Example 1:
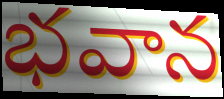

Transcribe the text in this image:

భవాన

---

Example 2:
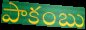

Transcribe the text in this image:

పాకంబు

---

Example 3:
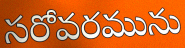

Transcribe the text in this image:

సరోవరమును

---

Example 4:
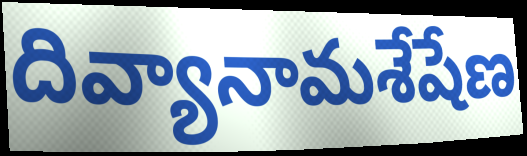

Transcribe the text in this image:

దివ్యానామశేషేణ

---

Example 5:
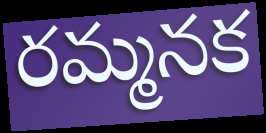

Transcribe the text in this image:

రమ్మనక